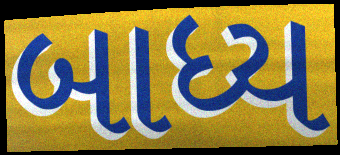
બાધ્ય